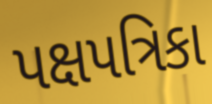
પક્ષપત્રિકા